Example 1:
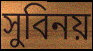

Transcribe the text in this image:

সুবিনয়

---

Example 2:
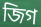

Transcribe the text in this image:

জিগ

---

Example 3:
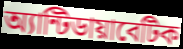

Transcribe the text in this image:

অ্যান্টিডায়াবেটিক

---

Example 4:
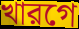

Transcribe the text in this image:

খারগে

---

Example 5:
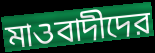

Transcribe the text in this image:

মাওবাদীদের